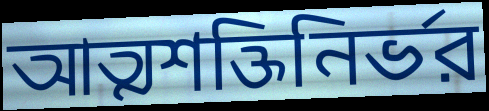
আত্মশক্তিনির্ভর